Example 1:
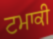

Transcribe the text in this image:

ਟਮਾਕੀ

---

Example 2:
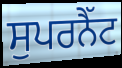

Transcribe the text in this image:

ਸੁਪਰਨੈੱਟ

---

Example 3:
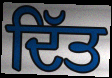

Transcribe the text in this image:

ਦਿੱਤ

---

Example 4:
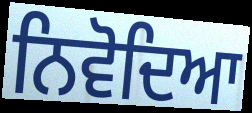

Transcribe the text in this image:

ਨਿਵੋਦਿਆ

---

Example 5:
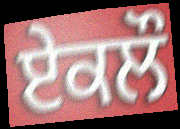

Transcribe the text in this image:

ਏਕਲੌ